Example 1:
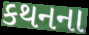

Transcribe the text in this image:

કથનના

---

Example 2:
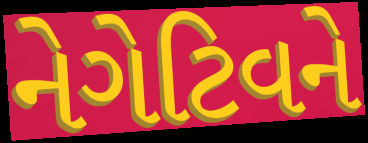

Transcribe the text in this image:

નેગેટિવને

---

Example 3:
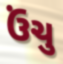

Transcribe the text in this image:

ઉંચુ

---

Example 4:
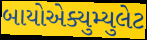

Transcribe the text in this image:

બાયોએક્યુમ્યુલેટ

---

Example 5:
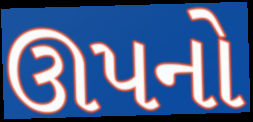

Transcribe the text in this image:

ઊપનો